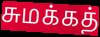
சுமக்கத்